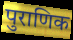
पुराणिक